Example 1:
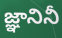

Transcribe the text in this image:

జ్ఞానినీ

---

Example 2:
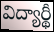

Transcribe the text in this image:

విద్యార్థీ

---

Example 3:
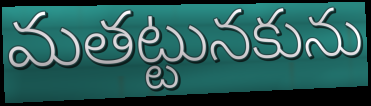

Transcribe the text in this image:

మతట్టునకును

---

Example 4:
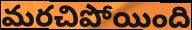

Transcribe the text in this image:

మరచిపోయింది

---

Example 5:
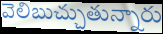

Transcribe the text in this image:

వెలిబుచ్చుతున్నారు